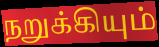
நறுக்கியும்